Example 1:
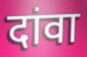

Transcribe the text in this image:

दांवा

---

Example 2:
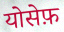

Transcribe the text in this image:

योसेफ़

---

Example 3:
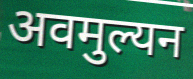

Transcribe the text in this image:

अवमुल्यन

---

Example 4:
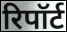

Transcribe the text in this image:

रिपॉर्ट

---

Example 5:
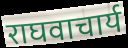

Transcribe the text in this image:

राघवाचार्य